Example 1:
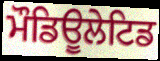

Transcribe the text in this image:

ਮੌਡਿਊਲੇਟਿਡ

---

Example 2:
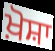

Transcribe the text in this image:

ਖ਼ੋਸ਼ਾ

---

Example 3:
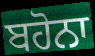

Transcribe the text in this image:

ਬਹੋਨਾ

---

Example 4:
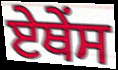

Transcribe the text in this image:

ਏਥੇਂਸ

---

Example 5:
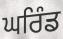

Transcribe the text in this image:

ਘਰਿੰਡ